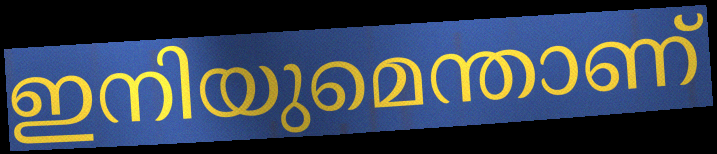
ഇനിയുമെന്താണ്